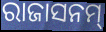
ରାଜାସନମ୍